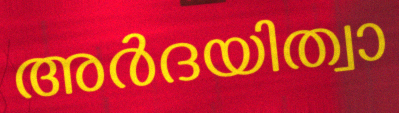
അർദയിത്വാ